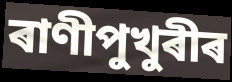
ৰাণীপুখুৰীৰ